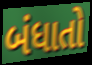
બંધાતો